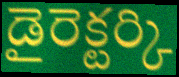
డైరెక్టర్కి